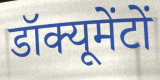
डॉक्यूमेंटों